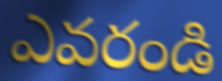
ఎవరండి